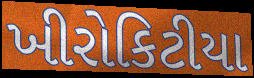
ખીરોકિટીયા